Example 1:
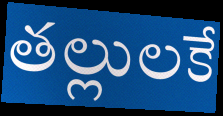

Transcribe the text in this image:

తల్లులకే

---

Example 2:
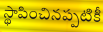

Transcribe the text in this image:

స్థాపించినప్పటికీ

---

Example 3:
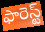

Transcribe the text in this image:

ఫారెస్ట్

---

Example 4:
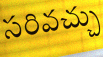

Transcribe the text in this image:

సరివచ్చు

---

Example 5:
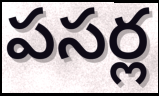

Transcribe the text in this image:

పసర్ల